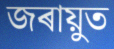
জৰায়ুত